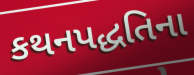
કથનપદ્ધતિના